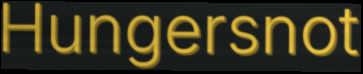
Hungersnot